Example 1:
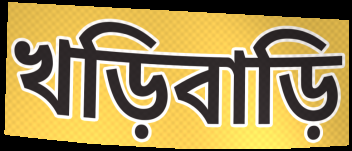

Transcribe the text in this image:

খড়িবাড়ি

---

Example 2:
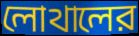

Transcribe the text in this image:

লোথালের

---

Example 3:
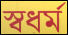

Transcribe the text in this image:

স্বধর্ম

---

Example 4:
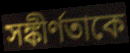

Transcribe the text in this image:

সঙ্কীর্ণতাকে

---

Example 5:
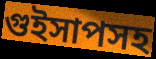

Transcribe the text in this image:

গুইসাপসহ